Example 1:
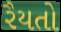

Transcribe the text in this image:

રૈયતો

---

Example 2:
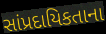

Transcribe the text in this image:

સાંપ્રદાયિકતાના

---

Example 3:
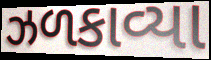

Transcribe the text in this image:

ઝળકાવ્યા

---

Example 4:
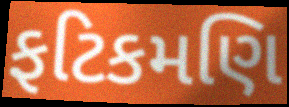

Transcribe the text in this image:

ફટિકમણિ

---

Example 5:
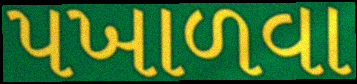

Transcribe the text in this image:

પખાળવા